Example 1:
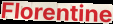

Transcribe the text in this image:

Florentine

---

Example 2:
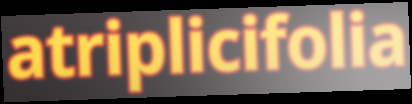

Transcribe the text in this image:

atriplicifolia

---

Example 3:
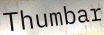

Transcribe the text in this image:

Thumbar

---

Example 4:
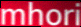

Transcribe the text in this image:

mhori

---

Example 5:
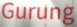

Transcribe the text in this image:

Gurung